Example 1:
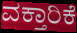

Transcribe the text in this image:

ವಕ್ತಾರಿಕೆ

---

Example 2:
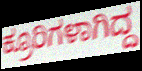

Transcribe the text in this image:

ಕ್ರೂರಿಗಳಾಗಿದ್ದ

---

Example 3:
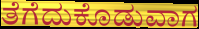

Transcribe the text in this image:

ತೆಗೆದುಕೊಡುವಾಗ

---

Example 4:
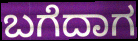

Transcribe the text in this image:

ಬಗೆದಾಗ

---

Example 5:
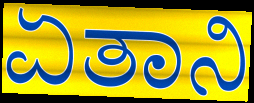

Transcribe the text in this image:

ಏತಾನಿ